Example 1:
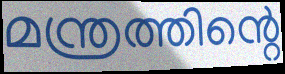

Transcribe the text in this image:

മന്ത്രത്തിന്റെ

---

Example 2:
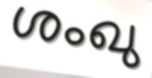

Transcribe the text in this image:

ശംഖു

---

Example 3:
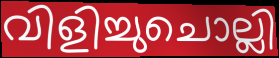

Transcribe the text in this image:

വിളിച്ചുചൊല്ലി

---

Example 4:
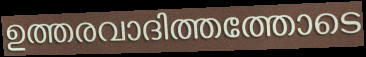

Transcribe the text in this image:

ഉത്തരവാദിത്തത്തോടെ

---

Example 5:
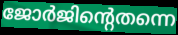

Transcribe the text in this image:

ജോർജിന്റെതന്നെ